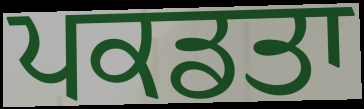
ਪਕਡਤਾ